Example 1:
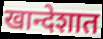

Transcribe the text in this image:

खान्देशात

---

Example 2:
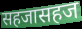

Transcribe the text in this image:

सहजासहज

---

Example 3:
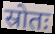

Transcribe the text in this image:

स्रोतः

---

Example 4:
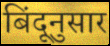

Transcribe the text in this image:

बिंदूनुसार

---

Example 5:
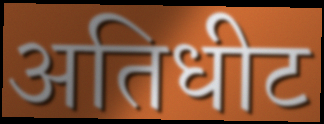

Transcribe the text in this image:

अतिधीट